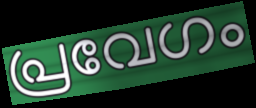
പ്രവേഗം